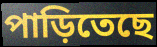
পাড়িতেছে